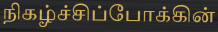
நிகழ்ச்சிப்போக்கின்